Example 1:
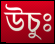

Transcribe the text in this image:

উচুঃ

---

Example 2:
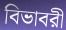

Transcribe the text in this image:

বিভাবরী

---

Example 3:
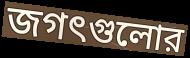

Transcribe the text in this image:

জগৎগুলোর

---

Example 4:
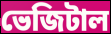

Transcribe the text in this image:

ভেজিটাল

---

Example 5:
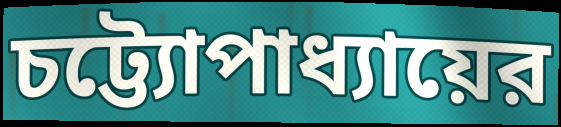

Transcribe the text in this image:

চট্ট্যোপাধ্যায়ের